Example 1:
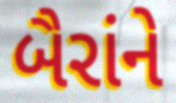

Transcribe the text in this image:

બૈરાંને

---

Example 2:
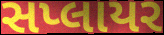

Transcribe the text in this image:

સપ્લાયર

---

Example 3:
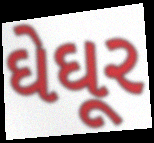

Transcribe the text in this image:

ઘેઘૂર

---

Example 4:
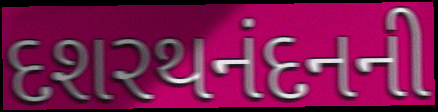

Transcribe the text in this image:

દશરથનંદનની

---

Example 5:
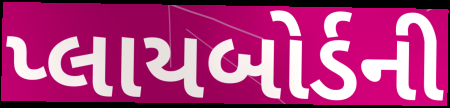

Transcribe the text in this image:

પ્લાયબોર્ડની